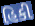
હિકી